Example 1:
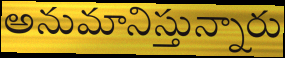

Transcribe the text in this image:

అనుమానిస్తున్నారు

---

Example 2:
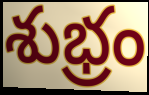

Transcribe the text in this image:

శుభ్రం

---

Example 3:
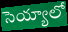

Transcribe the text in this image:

సెయ్యాలో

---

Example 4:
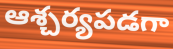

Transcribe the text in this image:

ఆశ్చర్యపడగా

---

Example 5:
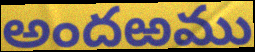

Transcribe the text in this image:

అందఱము